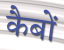
कैबों